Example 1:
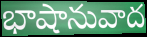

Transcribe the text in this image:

భాషానువాద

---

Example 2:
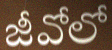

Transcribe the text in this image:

జీవోలో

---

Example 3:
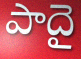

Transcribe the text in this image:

పాదై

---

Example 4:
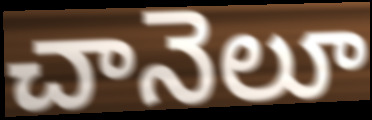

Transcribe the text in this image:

చానెలూ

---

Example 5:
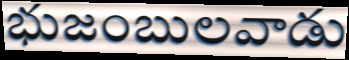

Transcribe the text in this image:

భుజంబులవాడు